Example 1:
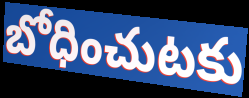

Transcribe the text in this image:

బోధించుటకు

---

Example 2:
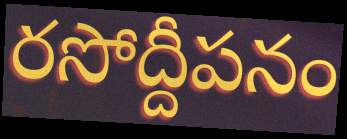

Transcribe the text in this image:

రసోద్దీపనం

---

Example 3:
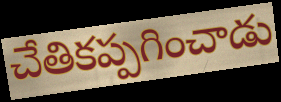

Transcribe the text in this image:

చేతికప్పగించాడు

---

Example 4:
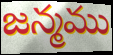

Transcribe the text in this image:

జన్మము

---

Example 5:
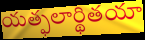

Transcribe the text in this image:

యత్ఫలార్థితయా